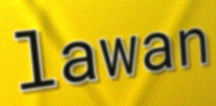
lawan